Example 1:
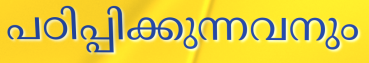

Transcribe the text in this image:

പഠിപ്പിക്കുന്നവനും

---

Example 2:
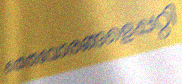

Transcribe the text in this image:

തെരുവോരങ്ങളെപ്പറ്റി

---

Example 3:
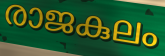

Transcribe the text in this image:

രാജകുലം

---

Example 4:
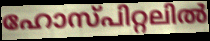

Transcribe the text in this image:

ഹോസ്പിറ്റലിൽ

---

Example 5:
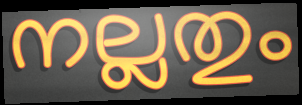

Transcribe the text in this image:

നല്ലതും